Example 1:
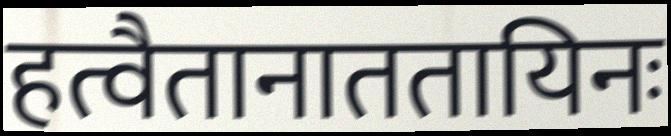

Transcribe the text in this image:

हत्वैतानाततायिनः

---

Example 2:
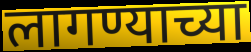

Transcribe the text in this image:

लागण्याच्या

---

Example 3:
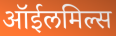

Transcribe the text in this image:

ऑईलमिल्स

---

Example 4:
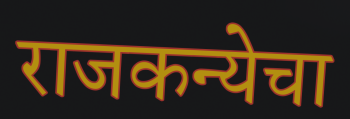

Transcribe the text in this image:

राजकन्येचा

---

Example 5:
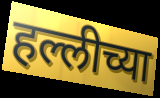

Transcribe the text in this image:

हल्लीच्या